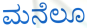
ಮನೆಲೂ